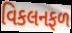
વિકલનફળ